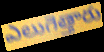
ఎలుగెత్తారు